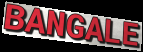
BANGALE